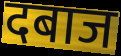
दबाज